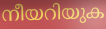
നീയറിയുക